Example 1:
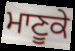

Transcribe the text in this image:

ਮਾਣੂਕੇ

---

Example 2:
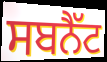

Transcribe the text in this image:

ਸਬਨੈੱਟ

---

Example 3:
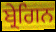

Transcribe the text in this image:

ਬ੍ਰੇਗਿਨ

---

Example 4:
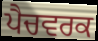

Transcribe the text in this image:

ਪੈਚਵਰਕ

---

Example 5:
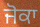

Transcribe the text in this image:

ਜੋਕਾ